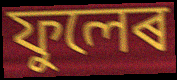
ফুলেৰ